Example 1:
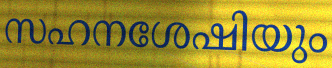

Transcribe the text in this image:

സഹനശേഷിയും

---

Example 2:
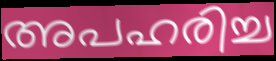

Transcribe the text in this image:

അപഹരിച്ച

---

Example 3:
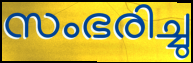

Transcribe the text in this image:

സംഭരിച്ചു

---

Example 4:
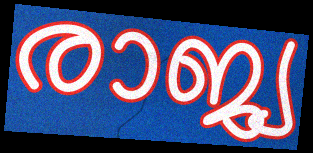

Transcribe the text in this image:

രാജ്യ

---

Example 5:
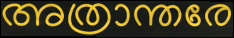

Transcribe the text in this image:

അത്രാന്തരേ